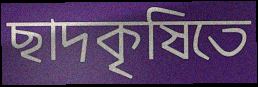
ছাদকৃষিতে